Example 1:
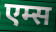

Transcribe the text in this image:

एम्स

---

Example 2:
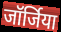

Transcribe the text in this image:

जॉर्जिया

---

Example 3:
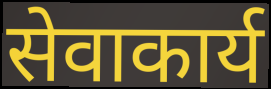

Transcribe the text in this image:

सेवाकार्य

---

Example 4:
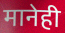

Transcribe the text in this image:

मानेही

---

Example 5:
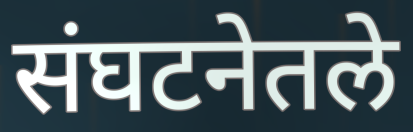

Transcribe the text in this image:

संघटनेतले